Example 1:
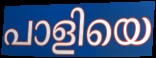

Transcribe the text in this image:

പാളിയെ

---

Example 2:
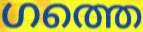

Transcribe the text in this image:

ഗത്തെ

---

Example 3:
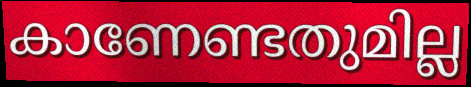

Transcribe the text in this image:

കാണേണ്ടതുമില്ല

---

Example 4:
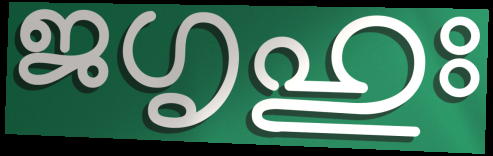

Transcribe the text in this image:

ജഗൃഹുഃ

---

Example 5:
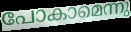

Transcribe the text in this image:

പോകാമെന്നു